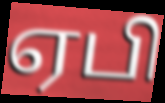
ஏபி